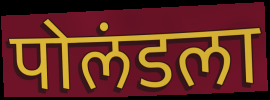
पोलंडला